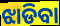
ଝାଡିବା